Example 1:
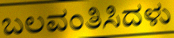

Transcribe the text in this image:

ಬಲವಂತಿಸಿದಳು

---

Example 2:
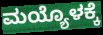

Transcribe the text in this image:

ಮಯ್ಯೊಳಕ್ಕೆ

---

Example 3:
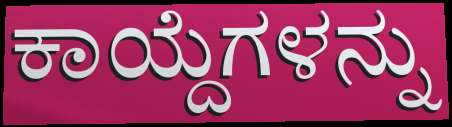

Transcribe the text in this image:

ಕಾಯ್ದೆಗಳನ್ನು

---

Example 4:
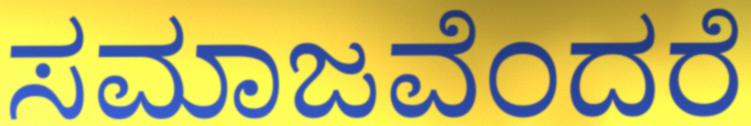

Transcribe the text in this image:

ಸಮಾಜವೆಂದರೆ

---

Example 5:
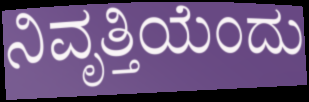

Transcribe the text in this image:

ನಿವೃತ್ತಿಯೆಂದು